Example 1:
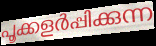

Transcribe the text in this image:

പൂക്കളർപ്പിക്കുന്ന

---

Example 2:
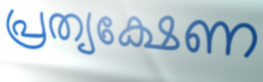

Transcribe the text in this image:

പ്രത്യക്ഷേണ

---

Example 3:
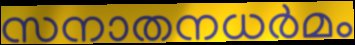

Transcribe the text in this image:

സനാതനധർമം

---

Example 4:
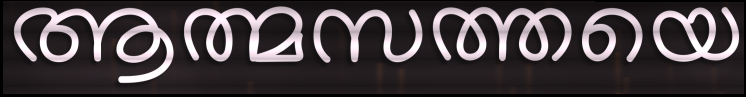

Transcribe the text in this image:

ആത്മസത്തയെ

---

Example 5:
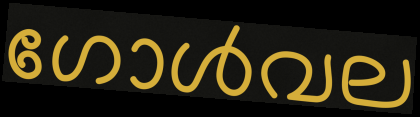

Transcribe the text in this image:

ഗോൾവല